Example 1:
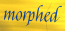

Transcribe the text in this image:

morphed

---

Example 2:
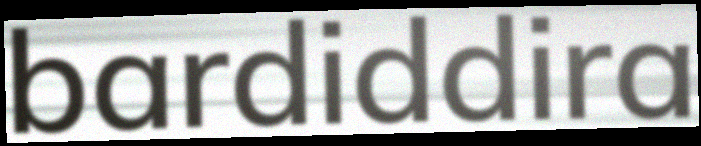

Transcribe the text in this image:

bardiddira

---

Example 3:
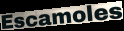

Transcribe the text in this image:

Escamoles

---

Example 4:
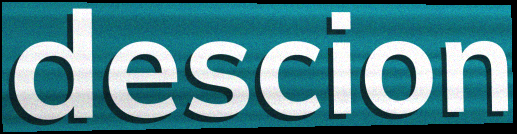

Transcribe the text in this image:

descion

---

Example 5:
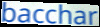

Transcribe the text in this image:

bacchar